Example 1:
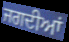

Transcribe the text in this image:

ਜਗਦੀਆਂ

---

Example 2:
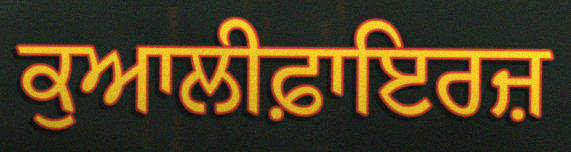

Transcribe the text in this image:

ਕੁਆਲੀਫ਼ਾਇਰਜ਼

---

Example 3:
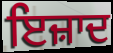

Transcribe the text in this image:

ਇਜ਼ਾਦ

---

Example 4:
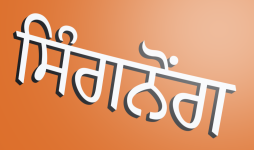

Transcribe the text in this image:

ਸਿੰਗਨੋਂਗ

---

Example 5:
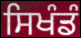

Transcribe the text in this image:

ਸਿਖੰਡੰ